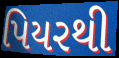
પિયરથી